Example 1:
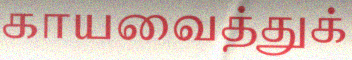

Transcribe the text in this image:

காயவைத்துக்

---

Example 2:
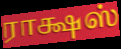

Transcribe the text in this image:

ராக்ஷஸ்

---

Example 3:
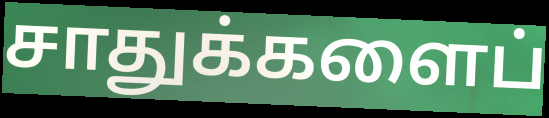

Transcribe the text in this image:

சாதுக்களைப்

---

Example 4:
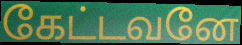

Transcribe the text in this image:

கேட்டவனே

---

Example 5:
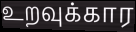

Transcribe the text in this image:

உறவுக்கார